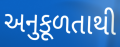
અનુકૂળતાથી